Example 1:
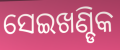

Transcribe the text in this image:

ସେଇଖଣ୍ଡିକ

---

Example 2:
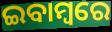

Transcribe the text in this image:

ଇବାମ୍ବରେ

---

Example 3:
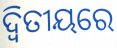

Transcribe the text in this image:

ଦ୍ୱିତୀୟରେ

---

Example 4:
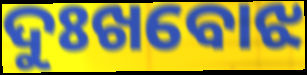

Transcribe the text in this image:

ଦୁଃଖବୋଝ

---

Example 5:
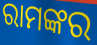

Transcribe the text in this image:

ରାମଙ୍କର